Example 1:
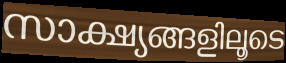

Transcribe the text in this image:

സാക്ഷ്യങ്ങളിലൂടെ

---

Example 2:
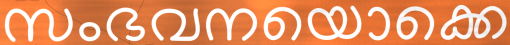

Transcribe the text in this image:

സംഭവനയൊക്കെ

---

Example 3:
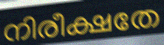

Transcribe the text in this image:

നിരീക്ഷതേ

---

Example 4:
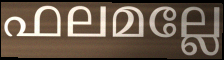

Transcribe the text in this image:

ഫലമല്ലേ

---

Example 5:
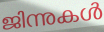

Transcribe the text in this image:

ജിന്നുകൾ